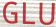
GLU